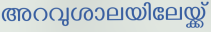
അറവുശാലയിലേയ്ക്ക്